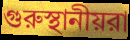
গুরুস্থানীয়রা